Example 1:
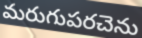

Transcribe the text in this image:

మరుగుపరచెను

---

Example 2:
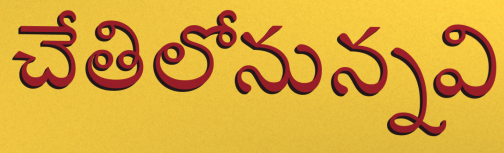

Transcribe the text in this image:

చేతిలోనున్నవి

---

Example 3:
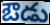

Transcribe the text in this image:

ఔడు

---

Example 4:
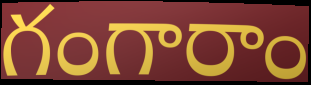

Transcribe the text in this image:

గంగారాం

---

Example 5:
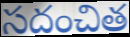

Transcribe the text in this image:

సదంచిత